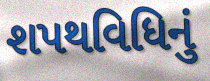
શપથવિધિનું